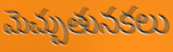
మెచ్చుతునకలు